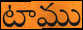
టాము